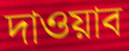
দাওয়াব